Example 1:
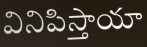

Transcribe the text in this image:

వినిపిస్తాయా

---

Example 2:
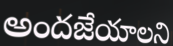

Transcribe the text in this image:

అందజేయాలని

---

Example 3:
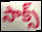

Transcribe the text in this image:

సాక్స్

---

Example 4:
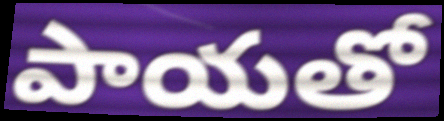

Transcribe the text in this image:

పాయతో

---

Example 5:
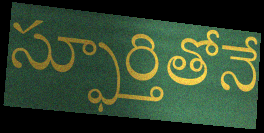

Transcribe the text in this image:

స్ఫూర్తితోనే